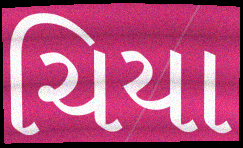
ચિયા